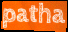
patha